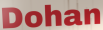
Dohan